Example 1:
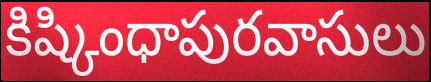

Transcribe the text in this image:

కిష్కింధాపురవాసులు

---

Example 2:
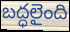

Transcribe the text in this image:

బద్ధలైంది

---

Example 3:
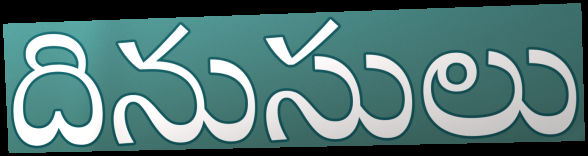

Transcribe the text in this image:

దినుసులు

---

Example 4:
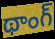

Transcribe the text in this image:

థాంగ్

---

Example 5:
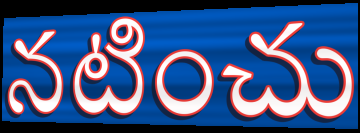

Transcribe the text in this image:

నటించు